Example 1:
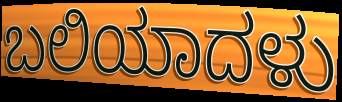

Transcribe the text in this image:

ಬಲಿಯಾದಳು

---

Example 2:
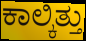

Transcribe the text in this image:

ಕಾಲ್ಕಿತ್ತು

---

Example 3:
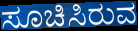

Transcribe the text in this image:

ಸೂಚಿಸಿರುವ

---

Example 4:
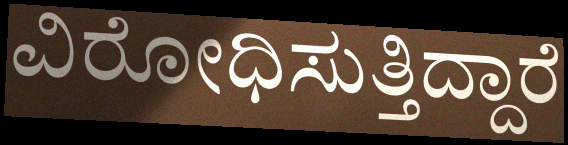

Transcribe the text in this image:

ವಿರೋಧಿಸುತ್ತಿದ್ದಾರೆ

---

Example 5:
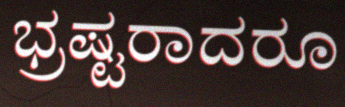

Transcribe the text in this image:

ಭ್ರಷ್ಟರಾದರೂ